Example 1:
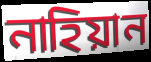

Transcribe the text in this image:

নাহিয়ান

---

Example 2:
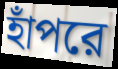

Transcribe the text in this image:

হাঁপরে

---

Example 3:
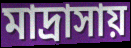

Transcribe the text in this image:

মাদ্রাসায়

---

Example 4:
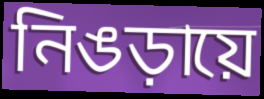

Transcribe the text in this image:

নিঙড়ায়ে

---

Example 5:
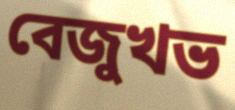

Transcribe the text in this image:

বেজুখভ